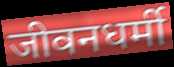
जीवनधर्मी